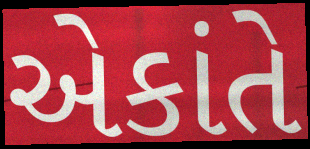
એકાંતે